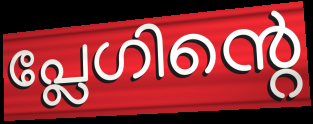
പ്ലേഗിന്റെ